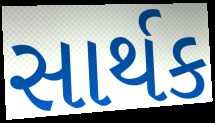
સાર્થક